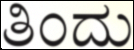
ತಿಂದು